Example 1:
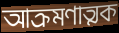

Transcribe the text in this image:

আক্রমণাত্মক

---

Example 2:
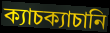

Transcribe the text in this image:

ক্যাচক্যাচানি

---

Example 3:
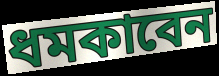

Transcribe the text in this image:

ধমকাবেন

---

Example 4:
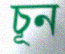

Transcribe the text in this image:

চূন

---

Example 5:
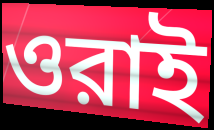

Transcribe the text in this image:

ওরাই